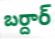
బర్దార్